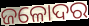
ଜଳୋଦର